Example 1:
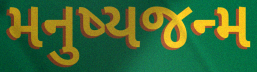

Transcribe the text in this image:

મનુષ્યજન્મ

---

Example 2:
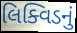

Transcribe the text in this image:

લિક્વિડનું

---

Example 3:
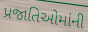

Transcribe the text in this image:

પ્રજાતિઓમાંની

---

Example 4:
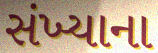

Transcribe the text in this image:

સંખ્યાના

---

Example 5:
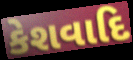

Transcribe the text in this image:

કેશવાદિ